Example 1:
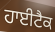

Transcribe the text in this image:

ਹਾਈਟੈਕ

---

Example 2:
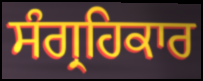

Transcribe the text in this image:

ਸੰਗ੍ਰਹਿਕਾਰ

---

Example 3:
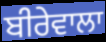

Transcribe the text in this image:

ਬੀਰੇਵਾਲਾ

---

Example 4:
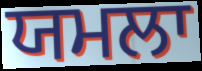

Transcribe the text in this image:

ਯਮਲਾ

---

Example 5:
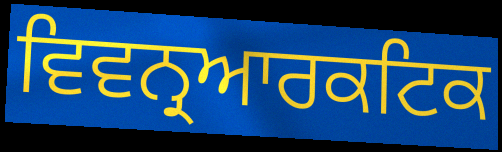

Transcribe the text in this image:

ਵਿਵਨ੍ਰਆਰਕਟਿਕ